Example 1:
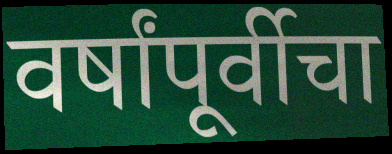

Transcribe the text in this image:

वर्षांपूर्वीचा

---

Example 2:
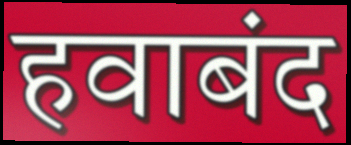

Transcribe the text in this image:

हवाबंद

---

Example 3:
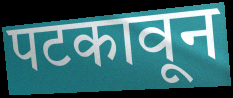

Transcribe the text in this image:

पटकावून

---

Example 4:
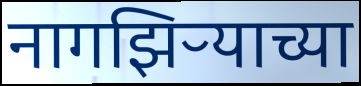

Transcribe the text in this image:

नागझिऱ्याच्या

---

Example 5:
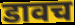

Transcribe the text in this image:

डावच